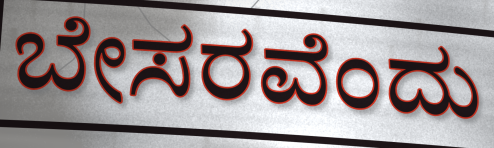
ಬೇಸರವೆಂದು